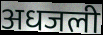
अधजली